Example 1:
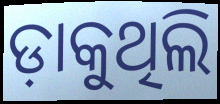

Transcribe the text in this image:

ଡ଼ାକୁଥିଲି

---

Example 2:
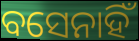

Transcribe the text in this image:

ବସେନାହିଁ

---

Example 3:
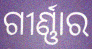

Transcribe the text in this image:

ଗୀର୍ଣ୍ଣାର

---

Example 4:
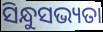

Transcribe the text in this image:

ସିନ୍ଧୁସଭ୍ୟତା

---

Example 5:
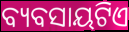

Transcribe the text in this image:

ବ୍ୟବସାୟଟିଏ